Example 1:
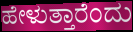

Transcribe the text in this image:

ಹೇಳುತ್ತಾರೆಂದು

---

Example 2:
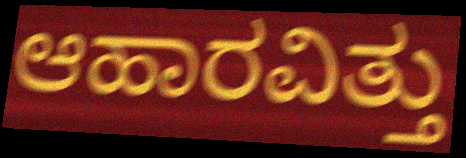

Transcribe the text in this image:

ಆಹಾರವಿತ್ತು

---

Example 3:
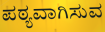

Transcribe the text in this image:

ಪಠ್ಯವಾಗಿಸುವ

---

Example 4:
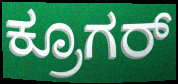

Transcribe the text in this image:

ಕ್ರೂಗರ್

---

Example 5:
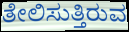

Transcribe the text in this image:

ತೇಲಿಸುತ್ತಿರುವ